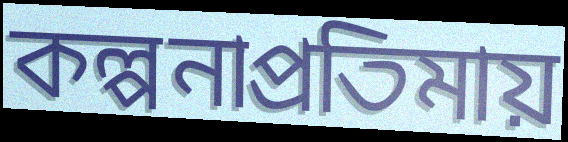
কল্পনাপ্রতিমায়